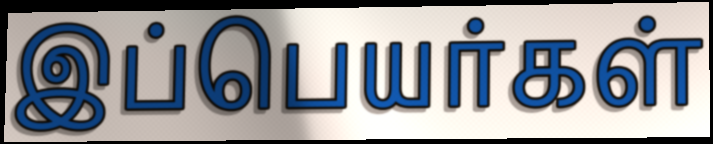
இப்பெயர்கள்